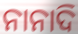
ନାନାଦି